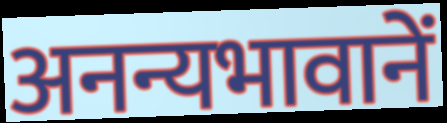
अनन्यभावानें